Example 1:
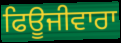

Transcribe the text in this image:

ਫਿਊਜੀਵਾਰਾ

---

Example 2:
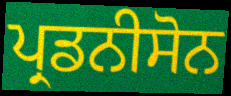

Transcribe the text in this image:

ਪ੍ਰਡਨੀਸੋਨ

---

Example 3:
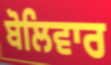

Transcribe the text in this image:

ਬੋਲਿਵਾਰ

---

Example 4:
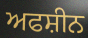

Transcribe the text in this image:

ਅਫਸ਼ੀਨ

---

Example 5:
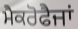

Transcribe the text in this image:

ਮੈਕਰੋਫੈਜਾਂ